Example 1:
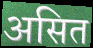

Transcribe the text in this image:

असित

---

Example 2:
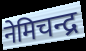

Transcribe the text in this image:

नेमिचन्द्र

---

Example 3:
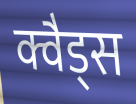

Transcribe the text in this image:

क्वैड्स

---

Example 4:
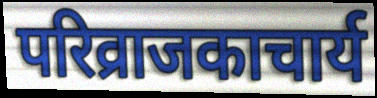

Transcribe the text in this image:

परिव्राजकाचार्य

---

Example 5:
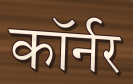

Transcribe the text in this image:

कॉर्नर